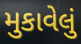
મુકાવેલું